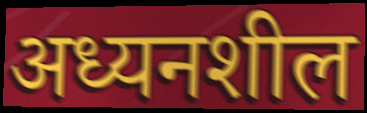
अध्यनशील